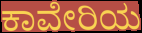
ಕಾವೇರಿಯ